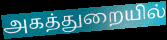
அகத்துறையில்